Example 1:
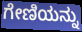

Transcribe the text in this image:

ಗೇಣಿಯನ್ನು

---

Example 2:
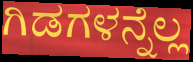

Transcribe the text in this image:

ಗಿಡಗಳನ್ನೆಲ್ಲ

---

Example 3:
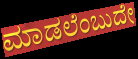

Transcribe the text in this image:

ಮಾಡಲೆಂಬುದೇ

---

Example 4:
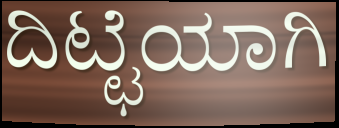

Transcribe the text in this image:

ದಿಟ್ಟೆಯಾಗಿ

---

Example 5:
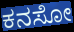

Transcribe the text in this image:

ಕನಸೋ